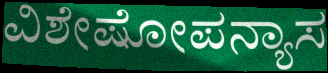
ವಿಶೇಷೋಪನ್ಯಾಸ